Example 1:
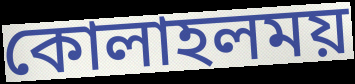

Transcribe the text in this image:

কোলাহলময়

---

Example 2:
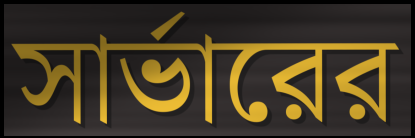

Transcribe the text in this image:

সার্ভারের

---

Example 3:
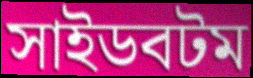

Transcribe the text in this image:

সাইডবটম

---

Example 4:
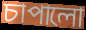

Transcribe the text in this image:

চাপালো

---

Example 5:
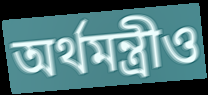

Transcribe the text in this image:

অর্থমন্ত্রীও